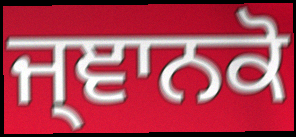
ਜ੍ਞਾਨਕੋ